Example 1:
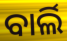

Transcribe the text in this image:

ବାର୍ଲି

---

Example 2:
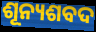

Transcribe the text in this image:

ଶୂନ୍ୟଶବଦ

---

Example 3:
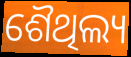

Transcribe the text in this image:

ଶୈଥିଲ୍ୟ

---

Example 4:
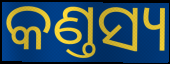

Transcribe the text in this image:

କଣ୍ତସ୍ୟ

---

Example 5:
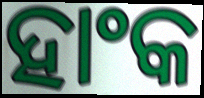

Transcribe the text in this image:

ହାଂକ